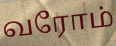
வரோம்